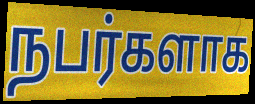
நபர்களாக